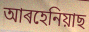
আৰহেনিয়াছ